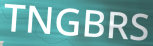
TNGBRS